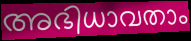
അഭിധാവതാം